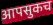
आपसुकच